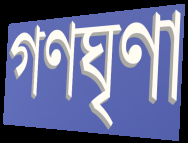
গণঘৃণা